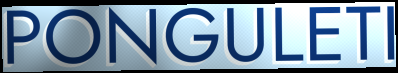
PONGULETI